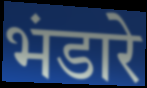
भंडारे